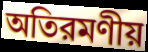
অতিরমণীয়